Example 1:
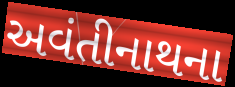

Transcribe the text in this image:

અવંતીનાથના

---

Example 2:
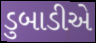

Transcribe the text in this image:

ડુબાડીએ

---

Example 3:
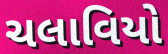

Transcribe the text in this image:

ચલાવિયો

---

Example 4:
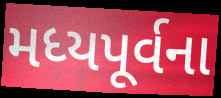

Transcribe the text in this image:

મધ્યપૂર્વના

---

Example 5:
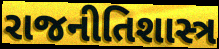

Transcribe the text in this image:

રાજનીતિશાસ્ત્ર